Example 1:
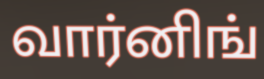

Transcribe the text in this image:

வார்னிங்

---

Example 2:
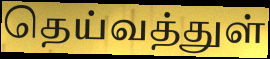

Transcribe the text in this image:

தெய்வத்துள்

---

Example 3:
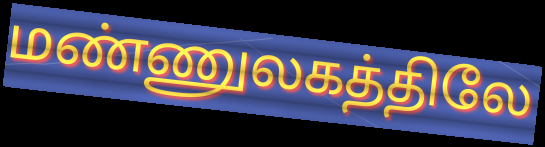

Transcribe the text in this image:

மண்ணுலகத்திலே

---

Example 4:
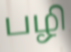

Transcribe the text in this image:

பழி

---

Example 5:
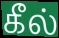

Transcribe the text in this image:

கீல்